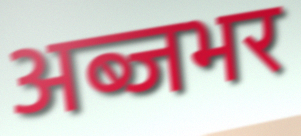
अब्जभर